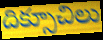
దిక్సూచిలు